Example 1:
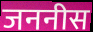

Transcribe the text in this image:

जननीस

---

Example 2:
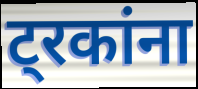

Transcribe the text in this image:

ट्रकांना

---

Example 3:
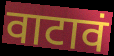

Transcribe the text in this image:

वाटावं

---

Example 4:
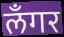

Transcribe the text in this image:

लँगर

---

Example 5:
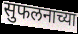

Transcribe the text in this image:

सुफलनाच्या